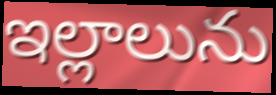
ఇల్లాలును